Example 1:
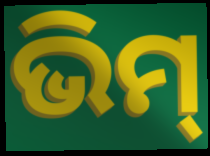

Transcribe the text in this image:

ଭିମ୍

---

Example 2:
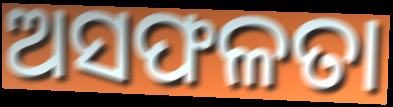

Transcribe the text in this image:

ଅସଫଳତା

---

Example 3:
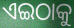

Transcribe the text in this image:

ଏଇଠାକୁ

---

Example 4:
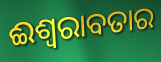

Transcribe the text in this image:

ଈଶ୍ୱରାବତାର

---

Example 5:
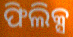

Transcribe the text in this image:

ଫିଲିକ୍ସ